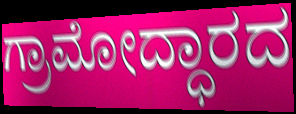
ಗ್ರಾಮೋದ್ಧಾರದ